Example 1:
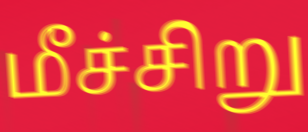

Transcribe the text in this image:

மீச்சிறு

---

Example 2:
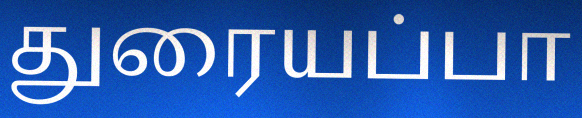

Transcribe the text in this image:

துரையப்பா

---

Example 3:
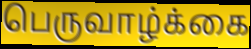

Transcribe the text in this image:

பெருவாழ்க்கை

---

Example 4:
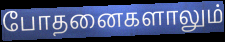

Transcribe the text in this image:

போதனைகளாலும்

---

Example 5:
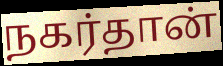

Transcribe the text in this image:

நகர்தான்